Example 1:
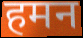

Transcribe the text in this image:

हमन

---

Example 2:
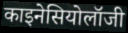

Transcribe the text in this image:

काइनेसियोलॉजी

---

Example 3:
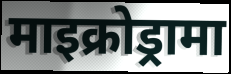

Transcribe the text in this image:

माइक्रोड्रामा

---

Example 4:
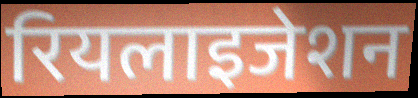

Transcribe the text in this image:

रियलाइजेशन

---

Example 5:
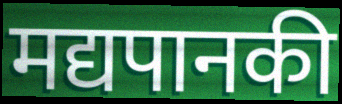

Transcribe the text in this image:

मद्यपानकी